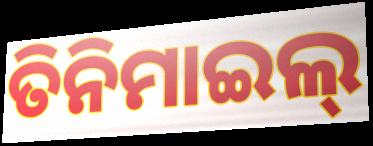
ତିନିମାଇଲ୍